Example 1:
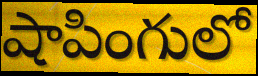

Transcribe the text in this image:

షాపింగులో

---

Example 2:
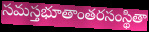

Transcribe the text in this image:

సమస్తభూతాంతరసంస్థితా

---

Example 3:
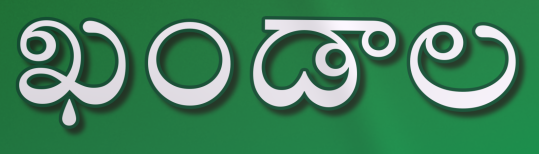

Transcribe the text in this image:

ఖండాల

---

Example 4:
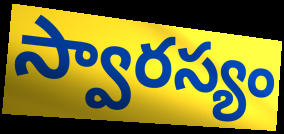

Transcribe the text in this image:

స్వారస్యం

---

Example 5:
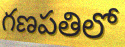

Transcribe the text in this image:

గణపతిలో